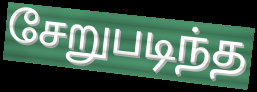
சேறுபடிந்த